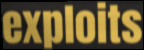
exploits